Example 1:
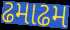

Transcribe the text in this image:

ઢમાઢમ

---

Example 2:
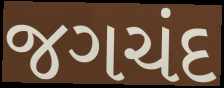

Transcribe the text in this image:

જગચંદ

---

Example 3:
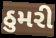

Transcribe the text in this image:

ઠુમરી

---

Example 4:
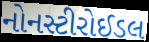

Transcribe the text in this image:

નોનસ્ટીરોઈડલ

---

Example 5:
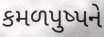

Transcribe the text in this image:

કમળપુષ્પને